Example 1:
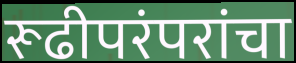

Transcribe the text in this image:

रूढीपरंपरांचा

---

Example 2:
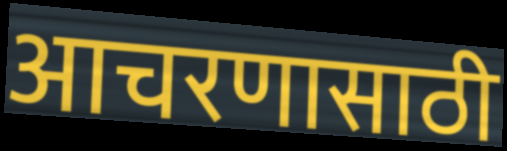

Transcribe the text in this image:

आचरणासाठी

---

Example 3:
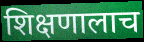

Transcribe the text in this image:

शिक्षणालाच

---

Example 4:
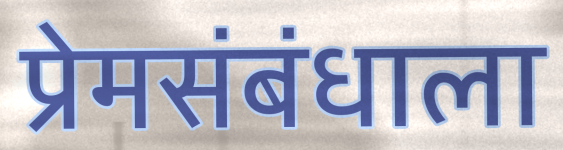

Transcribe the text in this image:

प्रेमसंबंधाला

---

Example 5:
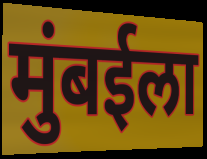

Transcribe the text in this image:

मुंबईला